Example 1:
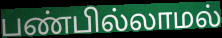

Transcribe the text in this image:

பண்பில்லாமல்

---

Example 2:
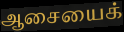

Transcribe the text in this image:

ஆசையைக்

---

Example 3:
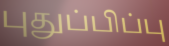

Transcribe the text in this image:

புதுப்பிப்பு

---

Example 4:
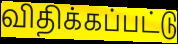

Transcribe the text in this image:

விதிக்கப்பட்டு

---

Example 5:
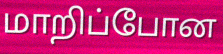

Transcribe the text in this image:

மாறிப்போன